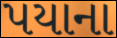
પયાના